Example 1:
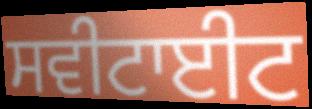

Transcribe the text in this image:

ਸਵੀਟਾਈਟ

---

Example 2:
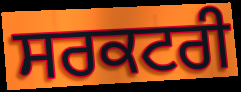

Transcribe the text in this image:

ਸਰਕਟਰੀ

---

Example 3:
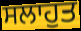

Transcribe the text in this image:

ਸਲਾਹੁਤ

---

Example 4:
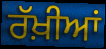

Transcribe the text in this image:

ਰੱਖ਼ੀਆਂ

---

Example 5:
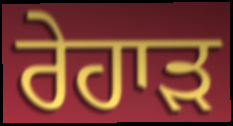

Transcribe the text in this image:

ਰੇਹਾੜ